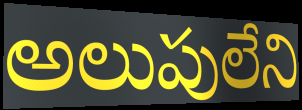
అలుపులేని